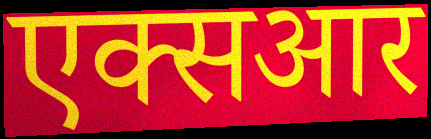
एक्सआर